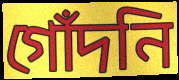
গোঁদনি